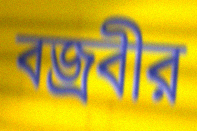
বজ্রবীর